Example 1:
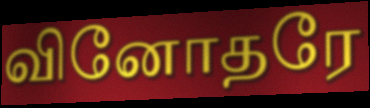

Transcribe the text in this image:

வினோதரே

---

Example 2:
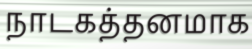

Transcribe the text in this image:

நாடகத்தனமாக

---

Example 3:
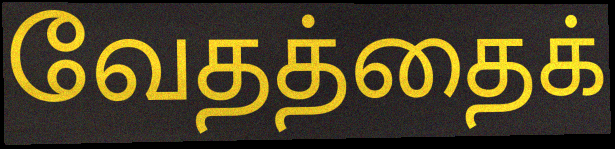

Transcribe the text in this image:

வேதத்தைக்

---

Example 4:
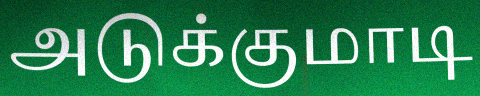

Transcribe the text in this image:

அடுக்குமாடி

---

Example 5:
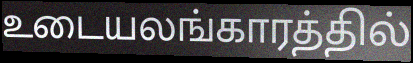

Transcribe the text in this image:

உடையலங்காரத்தில்